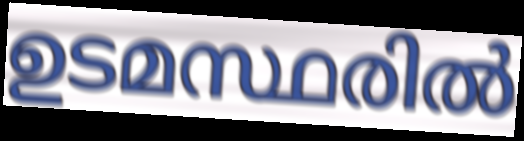
ഉടമസ്ഥരിൽ